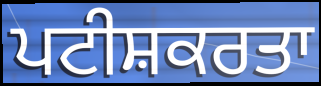
ਪਟੀਸ਼ਕਰਤਾ